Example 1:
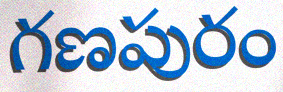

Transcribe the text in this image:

గణపురం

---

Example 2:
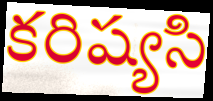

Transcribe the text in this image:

కరిష్యసి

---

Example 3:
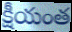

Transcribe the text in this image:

క్షీయంత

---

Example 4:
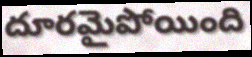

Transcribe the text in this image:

దూరమైపోయింది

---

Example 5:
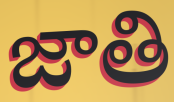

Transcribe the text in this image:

జాతి